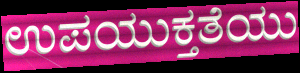
ಉಪಯುಕ್ತತೆಯು